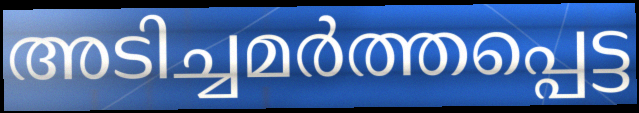
അടിച്ചമർത്തപ്പെട്ട